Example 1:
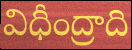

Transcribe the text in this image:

విధీంద్రాది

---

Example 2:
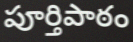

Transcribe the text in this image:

పూర్తిపాఠం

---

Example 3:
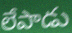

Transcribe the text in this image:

లేపాడు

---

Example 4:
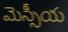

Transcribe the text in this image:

మెస్సీయ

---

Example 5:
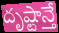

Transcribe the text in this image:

దృష్టాన్తే